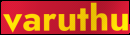
varuthu